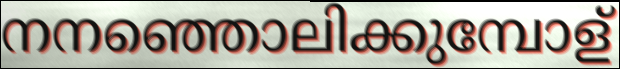
നനഞ്ഞൊലിക്കുമ്പോള്